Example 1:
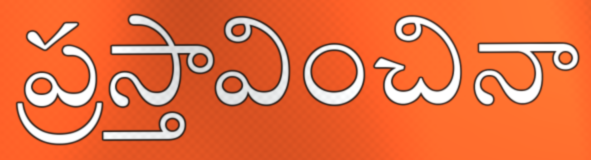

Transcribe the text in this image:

ప్రస్తావించినా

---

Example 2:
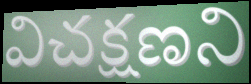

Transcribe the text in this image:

విచక్షణని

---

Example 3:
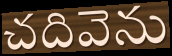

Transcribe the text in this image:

చదివెను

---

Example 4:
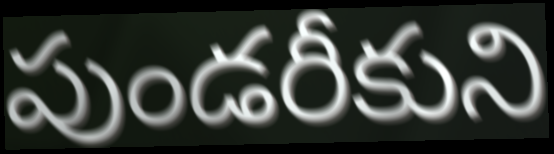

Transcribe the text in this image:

పుండరీకుని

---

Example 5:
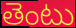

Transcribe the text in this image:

తెంటు